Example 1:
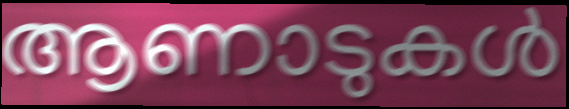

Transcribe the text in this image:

ആണാടുകൾ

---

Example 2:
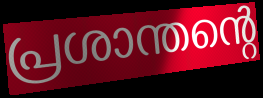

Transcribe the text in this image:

പ്രശാന്തന്റെ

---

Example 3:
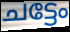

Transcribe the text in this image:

ചട്ടേം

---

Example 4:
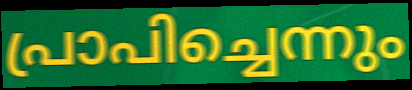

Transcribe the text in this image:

പ്രാപിച്ചെന്നും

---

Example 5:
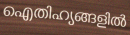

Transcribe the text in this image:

ഐതിഹ്യങ്ങളിൽ